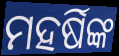
ମହର୍ଷିଙ୍କ